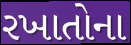
રખાતોના